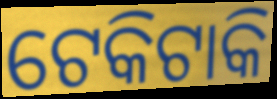
ଟେକିଟାକି